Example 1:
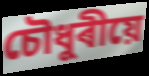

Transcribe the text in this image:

চৌধুৰীয়ে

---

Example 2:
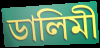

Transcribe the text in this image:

ডালিমী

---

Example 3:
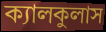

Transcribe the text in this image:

ক্যালকুলাস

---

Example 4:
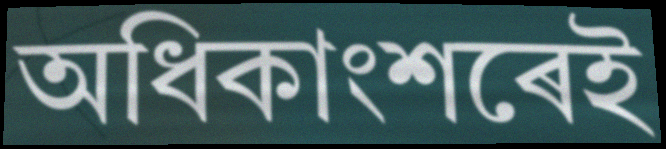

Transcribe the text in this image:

অধিকাংশৰেই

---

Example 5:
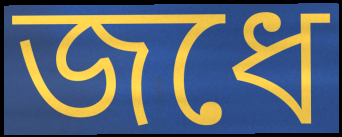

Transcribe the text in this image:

জধে